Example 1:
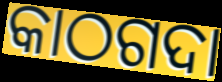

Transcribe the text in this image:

କାଠଗଦା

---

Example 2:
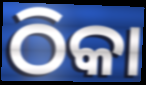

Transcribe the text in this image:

ଠିକା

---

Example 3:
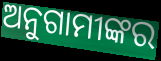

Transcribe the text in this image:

ଅନୁଗାମୀଙ୍କର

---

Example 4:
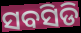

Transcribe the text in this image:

ସବସିଡି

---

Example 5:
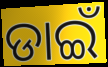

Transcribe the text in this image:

ଡାଇଁ